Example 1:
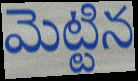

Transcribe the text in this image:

మెట్టిన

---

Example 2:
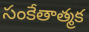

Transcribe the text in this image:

సంకేతాత్మక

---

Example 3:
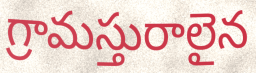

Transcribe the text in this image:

గ్రామస్తురాలైన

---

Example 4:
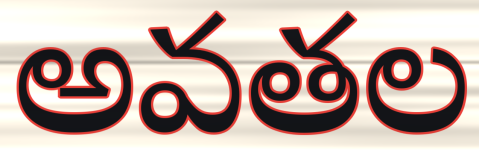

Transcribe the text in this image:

అవతల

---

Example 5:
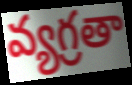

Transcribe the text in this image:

వ్యగ్రతా